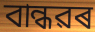
বান্ধৱৰ